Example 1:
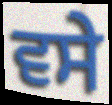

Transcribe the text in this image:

ਵਸੇ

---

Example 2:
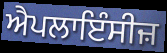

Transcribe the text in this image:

ਐਪਲਾਇੰਸੀਜ਼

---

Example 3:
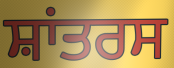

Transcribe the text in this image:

ਸ਼ਾਂਤਰਸ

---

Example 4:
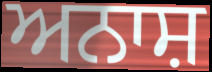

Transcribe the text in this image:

ਅਨਾਸ਼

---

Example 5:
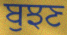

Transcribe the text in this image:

ਬੁਝਣ